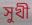
সুখী